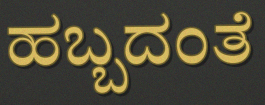
ಹಬ್ಬದಂತೆ